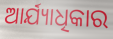
ଆର୍ଯ୍ୟାଧିକାର